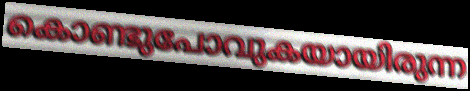
കൊണ്ടുപോവുകയായിരുന്ന